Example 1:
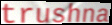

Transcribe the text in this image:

trushna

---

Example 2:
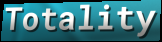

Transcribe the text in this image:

Totality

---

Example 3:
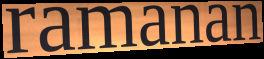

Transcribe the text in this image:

ramanan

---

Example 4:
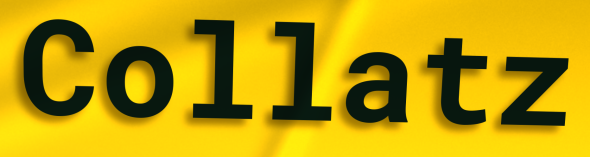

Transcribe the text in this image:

Collatz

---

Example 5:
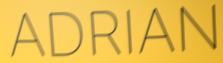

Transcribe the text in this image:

ADRIAN